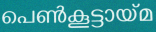
പെൺകൂട്ടായ്മ